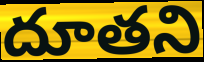
దూతని